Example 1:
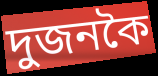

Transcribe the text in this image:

দুজনকৈ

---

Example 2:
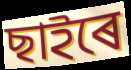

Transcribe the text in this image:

ছাইৰে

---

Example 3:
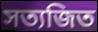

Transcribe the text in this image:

সত্যজিত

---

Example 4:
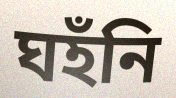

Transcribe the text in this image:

ঘহঁনি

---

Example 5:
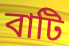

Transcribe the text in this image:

বাটি